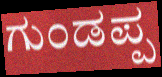
ಗುಂಡಪ್ಪ